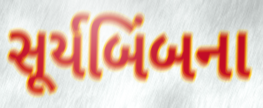
સૂર્યબિંબના